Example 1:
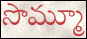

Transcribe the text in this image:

సొమ్మూ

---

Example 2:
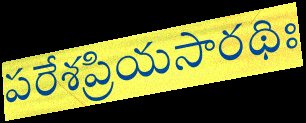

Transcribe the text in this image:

పరేశప్రియసారథిః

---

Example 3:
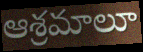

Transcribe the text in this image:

ఆశ్రమాలూ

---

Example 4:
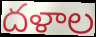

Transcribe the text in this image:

దళాల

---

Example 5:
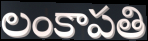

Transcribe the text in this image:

లంకాపతి